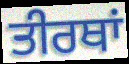
ਤੀਰਥਾਂ